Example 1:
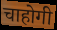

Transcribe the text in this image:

चाहोगी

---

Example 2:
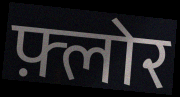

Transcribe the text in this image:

फ़्लोर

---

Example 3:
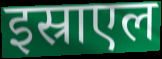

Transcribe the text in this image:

इस्राएल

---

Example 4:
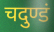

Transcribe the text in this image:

चदुण्डं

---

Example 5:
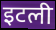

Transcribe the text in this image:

इटली